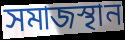
সমাজস্থান